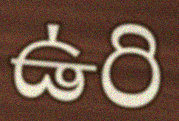
ఉరి